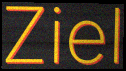
Ziel